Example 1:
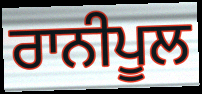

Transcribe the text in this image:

ਰਾਨੀਪੂਲ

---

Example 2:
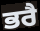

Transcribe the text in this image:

ਭਰੈ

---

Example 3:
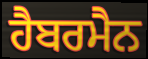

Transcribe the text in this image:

ਹੈਬਰਮੈਨ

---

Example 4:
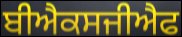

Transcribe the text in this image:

ਬੀਐਕਸਜੀਐਫ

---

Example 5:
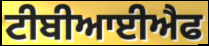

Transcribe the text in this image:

ਟੀਬੀਆਈਐਫ